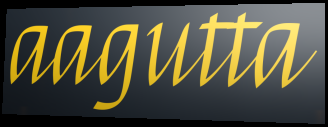
aagutta